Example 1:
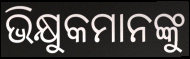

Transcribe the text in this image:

ଭିକ୍ଷୁକମାନଙ୍କୁ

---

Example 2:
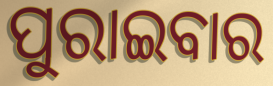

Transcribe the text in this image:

ପୁରାଇବାର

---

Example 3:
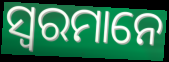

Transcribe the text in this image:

ସ୍ୱରମାନେ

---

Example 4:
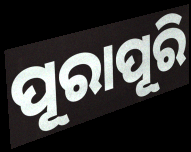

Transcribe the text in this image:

ପୂରାପୂରି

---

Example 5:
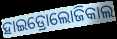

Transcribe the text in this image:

ହାଇଡ୍ରୋଲୋଜିକାଲ